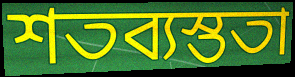
শতব্যস্ততা